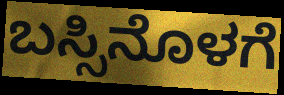
ಬಸ್ಸಿನೊಳಗೆ